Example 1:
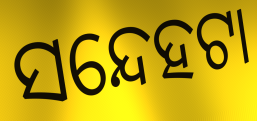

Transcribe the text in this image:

ସନ୍ଦେହଟା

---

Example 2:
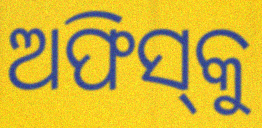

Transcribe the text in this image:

ଅଫିସ୍‌କୁ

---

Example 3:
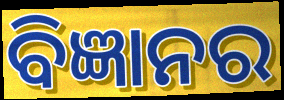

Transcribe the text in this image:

ବିଜ୍ଞାନର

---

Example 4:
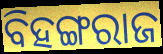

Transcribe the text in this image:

ବିହଙ୍ଗରାଜ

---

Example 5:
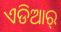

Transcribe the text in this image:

ଏଡିଆର୍